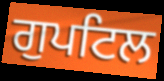
ਗੁਪਟਿਲ